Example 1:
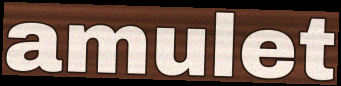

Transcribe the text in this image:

amulet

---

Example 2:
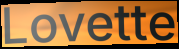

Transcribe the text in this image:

Lovette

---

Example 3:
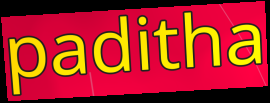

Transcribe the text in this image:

paditha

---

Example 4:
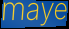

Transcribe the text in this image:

maye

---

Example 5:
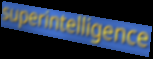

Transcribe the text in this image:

superintelligence